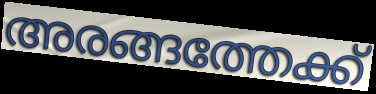
അരങ്ങത്തേക്ക്